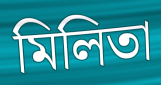
মিলিতা